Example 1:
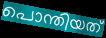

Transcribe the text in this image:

പൊന്തിയത്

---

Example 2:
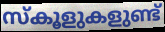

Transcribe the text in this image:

സ്കൂളുകളുണ്ട്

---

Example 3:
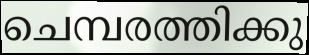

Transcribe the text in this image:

ചെമ്പരത്തിക്കു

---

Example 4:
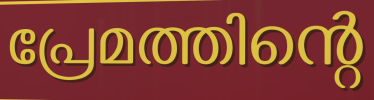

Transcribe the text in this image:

പ്രേമത്തിന്റെ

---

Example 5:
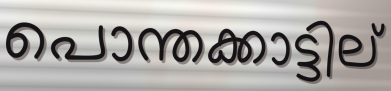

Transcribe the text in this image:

പൊന്തക്കാട്ടില്